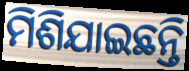
ମିଶିଯାଇଛନ୍ତି